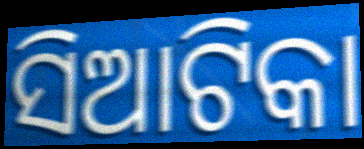
ସିଆଟିକା